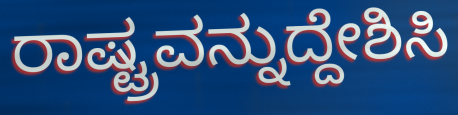
ರಾಷ್ಟ್ರವನ್ನುದ್ದೇಶಿಸಿ